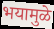
भयामुळे